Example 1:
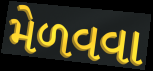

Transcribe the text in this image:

મેળવવા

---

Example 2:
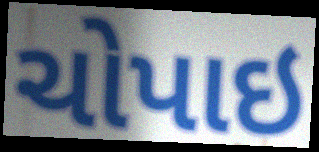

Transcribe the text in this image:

ચોપાઇ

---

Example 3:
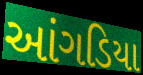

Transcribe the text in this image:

આંગડિયા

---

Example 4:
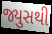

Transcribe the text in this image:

જ્યુસથી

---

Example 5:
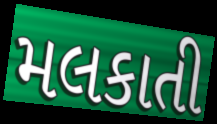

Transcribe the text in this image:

મલકાતી